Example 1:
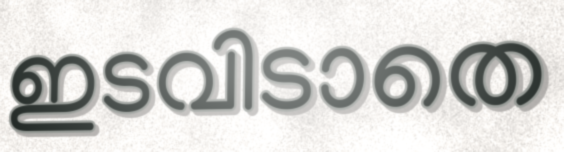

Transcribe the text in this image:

ഇടവിടാതെ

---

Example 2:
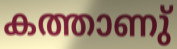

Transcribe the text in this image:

കത്താണു്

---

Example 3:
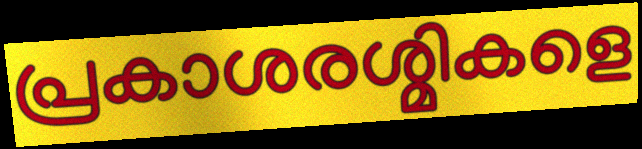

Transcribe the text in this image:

പ്രകാശരശ്മികളെ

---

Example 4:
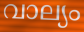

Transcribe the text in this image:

വാല്യം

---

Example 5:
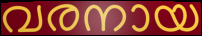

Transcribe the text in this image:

വരനായ